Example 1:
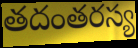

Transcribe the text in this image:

తదంతరస్య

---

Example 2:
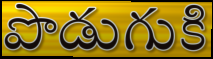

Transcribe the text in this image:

పొడుగుకి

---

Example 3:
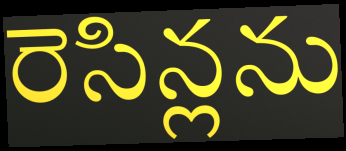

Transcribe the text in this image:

రెసిన్లను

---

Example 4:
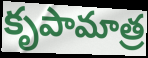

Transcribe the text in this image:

కృపామాత్ర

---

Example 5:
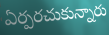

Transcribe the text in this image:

ఏర్పరచుకున్నారు